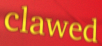
clawed